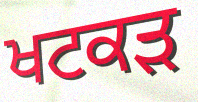
ਖਟਕੜ